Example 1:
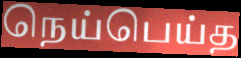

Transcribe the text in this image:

நெய்பெய்த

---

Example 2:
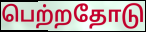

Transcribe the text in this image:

பெற்றதோடு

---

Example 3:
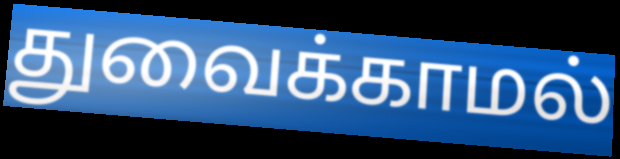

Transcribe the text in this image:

துவைக்காமல்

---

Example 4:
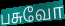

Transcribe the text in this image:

பசுவோ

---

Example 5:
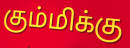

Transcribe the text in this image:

கும்மிக்கு